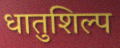
धातुशिल्प